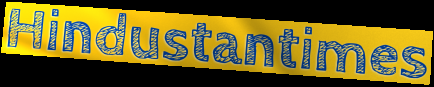
Hindustantimes